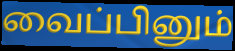
வைப்பினும்